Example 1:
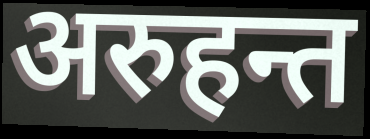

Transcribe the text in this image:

अरुहन्त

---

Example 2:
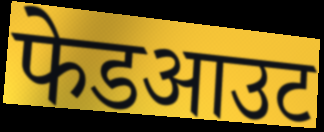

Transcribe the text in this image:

फेडआउट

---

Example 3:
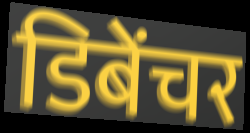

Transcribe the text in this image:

डिबेंचर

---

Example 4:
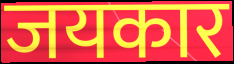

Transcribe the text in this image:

जयकार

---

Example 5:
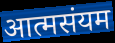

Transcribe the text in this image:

आत्मसंयम